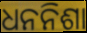
ଧନନିଶା